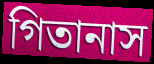
গিতানাস